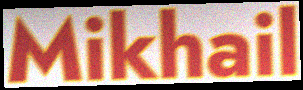
Mikhail